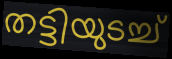
തട്ടിയുടച്ച്